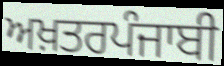
ਅਖ਼ਤਰਪੰਜਾਬੀ